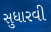
સુધારવી